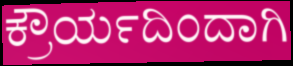
ಕ್ರೌರ್ಯದಿಂದಾಗಿ